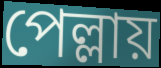
পেল্লায়